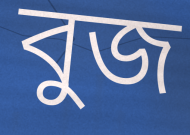
বুজ